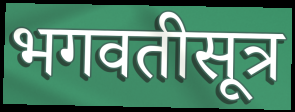
भगवतीसूत्र